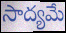
సాద్యమే